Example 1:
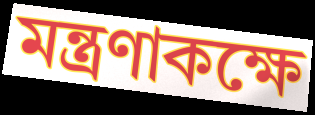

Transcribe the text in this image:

মন্ত্রণাকক্ষে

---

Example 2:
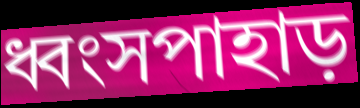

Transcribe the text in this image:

ধ্বংসপাহাড়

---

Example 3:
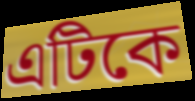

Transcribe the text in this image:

এটিকে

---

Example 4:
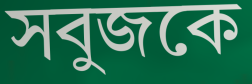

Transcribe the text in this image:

সবুজকে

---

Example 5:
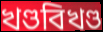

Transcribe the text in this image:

খণ্ডবিখণ্ড